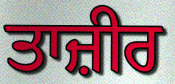
ਤਾਜ਼ੀਰ